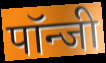
पॉन्जी